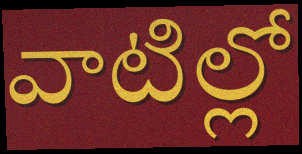
వాటిల్లో